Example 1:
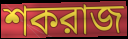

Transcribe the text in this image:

শকরাজ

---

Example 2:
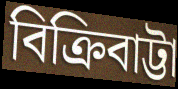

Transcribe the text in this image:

বিক্রিবাট্টা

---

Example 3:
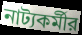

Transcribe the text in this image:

নাট্যকর্মীর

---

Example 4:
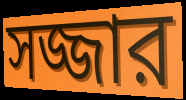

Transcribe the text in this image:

সজ্জার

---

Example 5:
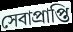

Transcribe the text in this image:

সেবাপ্রাপ্তি